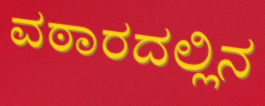
ವಠಾರದಲ್ಲಿನ